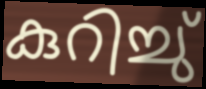
കുറിച്ചു്